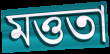
মত্ততা